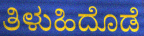
ತಿಳುಹಿದೊಡೆ